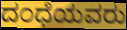
ದಂಧೆಯವರು